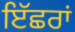
ਇੱਛਰਾਂ